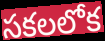
సకలలోక